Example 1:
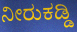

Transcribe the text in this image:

ನೀರುಕಡ್ಡಿ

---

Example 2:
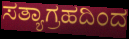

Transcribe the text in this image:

ಸತ್ಯಾಗ್ರಹದಿಂದ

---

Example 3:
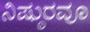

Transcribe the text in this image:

ನಿಷ್ಠುರವೂ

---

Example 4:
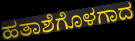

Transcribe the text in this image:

ಹತಾಶೆಗೊಳಗಾದ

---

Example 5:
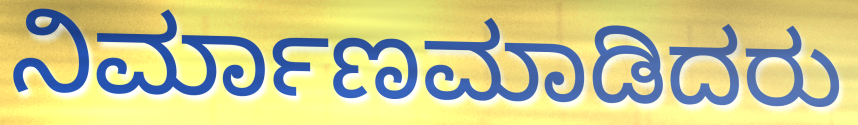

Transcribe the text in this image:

ನಿರ್ಮಾಣಮಾಡಿದರು